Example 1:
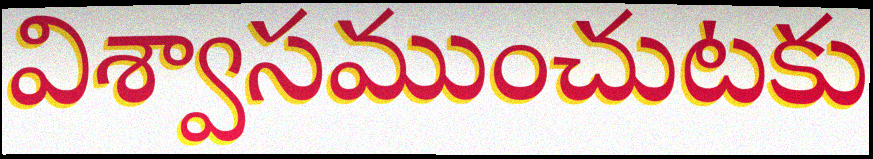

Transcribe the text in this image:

విశ్వాసముంచుటకు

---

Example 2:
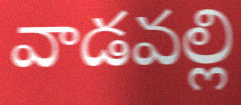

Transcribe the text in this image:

వాడవల్లి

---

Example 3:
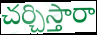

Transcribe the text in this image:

చర్చిస్తారా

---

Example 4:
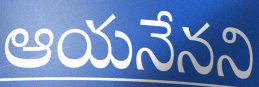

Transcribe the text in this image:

ఆయనేనని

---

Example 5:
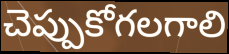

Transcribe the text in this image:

చెప్పుకోగలగాలి